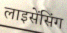
लाइसेंसिंग